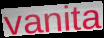
vanita